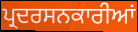
ਪ੍ਰਦਰਸਨਕਾਰੀਆਂ